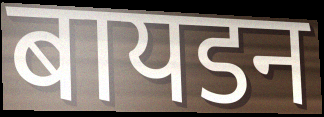
बायडन